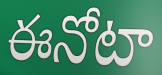
ఈనోటా